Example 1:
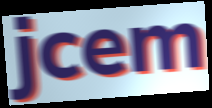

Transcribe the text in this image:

jcem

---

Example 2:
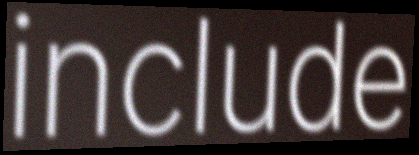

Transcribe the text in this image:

include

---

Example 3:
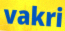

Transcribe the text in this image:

vakri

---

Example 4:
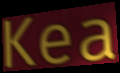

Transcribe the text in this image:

Kea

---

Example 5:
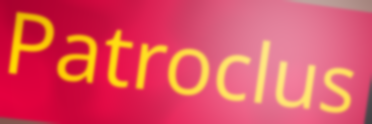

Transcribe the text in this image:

Patroclus